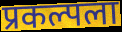
प्रकल्पला